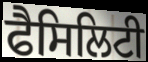
ਫੈਸਿਲਿਟੀ